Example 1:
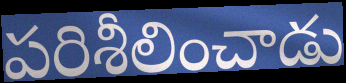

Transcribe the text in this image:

పరిశీలించాడు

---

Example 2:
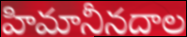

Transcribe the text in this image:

హిమానీనదాల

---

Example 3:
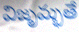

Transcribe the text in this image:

విజృమ్భతే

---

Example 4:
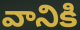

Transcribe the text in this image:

వానికి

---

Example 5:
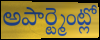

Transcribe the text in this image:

అపార్ట్మెంట్లో